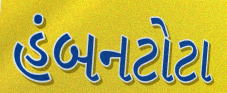
હંબનટોટા